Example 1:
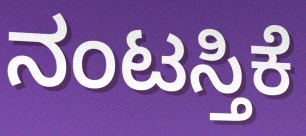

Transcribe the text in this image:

ನಂಟಸ್ತಿಕೆ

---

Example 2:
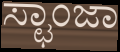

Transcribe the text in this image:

ಸ್ಟಾಂಜಾ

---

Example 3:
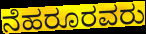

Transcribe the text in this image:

ನೆಹರೂರವರು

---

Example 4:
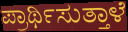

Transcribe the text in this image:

ಪ್ರಾರ್ಥಿಸುತ್ತಾಳೆ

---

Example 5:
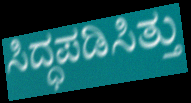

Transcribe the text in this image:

ಸಿದ್ಧಪಡಿಸಿತ್ತು